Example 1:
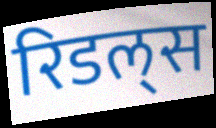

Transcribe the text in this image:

रिडल्स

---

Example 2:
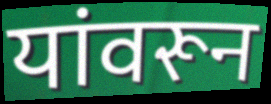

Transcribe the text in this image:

यांवरून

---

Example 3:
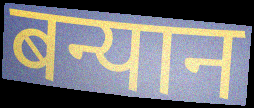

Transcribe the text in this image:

बन्यान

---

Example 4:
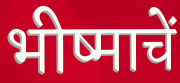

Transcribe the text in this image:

भीष्माचें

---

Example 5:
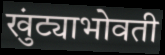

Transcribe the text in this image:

खुंट्याभोवती